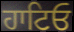
ਹਾਟਿਓ